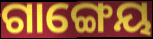
ଗାଙ୍ଗେୟ